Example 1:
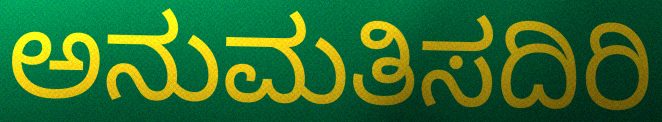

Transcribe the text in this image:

ಅನುಮತಿಸದಿರಿ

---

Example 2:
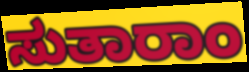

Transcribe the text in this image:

ಸುತಾರಾಂ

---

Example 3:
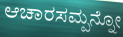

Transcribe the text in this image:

ಆಚಾರಸಮ್ಪನ್ನೋ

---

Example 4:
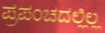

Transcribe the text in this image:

ಪ್ರಪಂಚದಲ್ಲಿಲ್ಲ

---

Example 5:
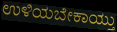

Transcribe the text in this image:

ಉಳಿಯಬೇಕಾಯ್ತು